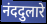
नंददुलारे